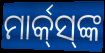
ମାର୍କ୍‌ସ୍‌ଙ୍କ